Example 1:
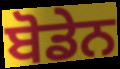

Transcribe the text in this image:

ਬੋਡੇਨ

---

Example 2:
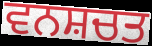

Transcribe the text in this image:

ਵਨਸ਼ਚਤ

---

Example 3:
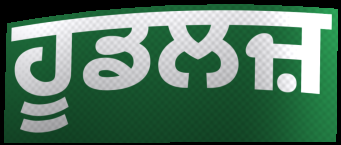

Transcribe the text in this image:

ਹੂਡਲਜ਼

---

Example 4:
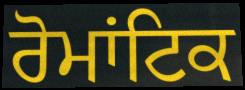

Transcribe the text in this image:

ਰੋਮਾਂਟਿਕ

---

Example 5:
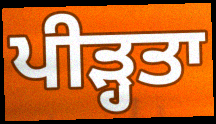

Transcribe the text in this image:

ਪੀੜ੍ਹਤਾ